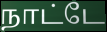
நாட்டே